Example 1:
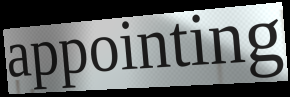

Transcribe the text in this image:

appointing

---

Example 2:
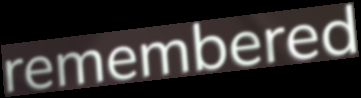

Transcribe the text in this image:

remembered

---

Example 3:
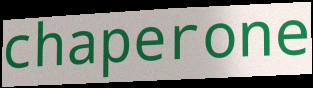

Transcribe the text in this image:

chaperone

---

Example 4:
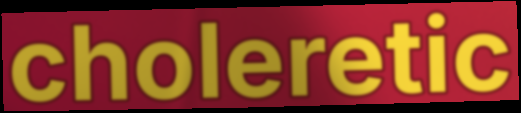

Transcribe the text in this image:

choleretic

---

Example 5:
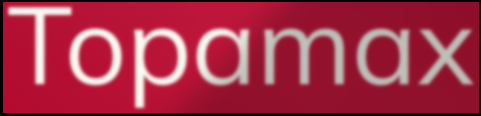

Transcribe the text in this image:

Topamax